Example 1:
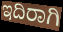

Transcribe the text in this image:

ಇದಿರಾಗಿ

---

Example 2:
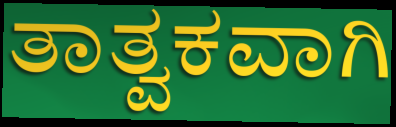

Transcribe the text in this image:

ತಾತ್ವಕವಾಗಿ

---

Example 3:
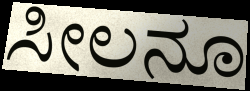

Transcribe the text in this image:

ಸೀಲನೂ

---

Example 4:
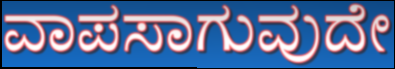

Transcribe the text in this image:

ವಾಪಸಾಗುವುದೇ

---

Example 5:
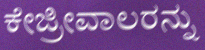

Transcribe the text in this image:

ಕೇಜ್ರೀವಾಲರನ್ನು